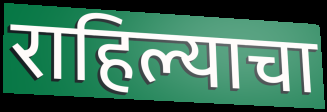
राहिल्याचा